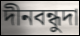
দীনবন্ধুদা